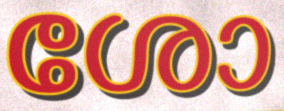
ശോ